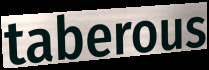
taberous